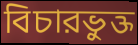
বিচারভুক্ত